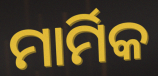
ମାର୍ମିକ